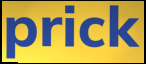
prick